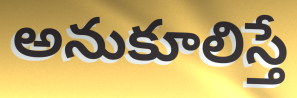
అనుకూలిస్తే